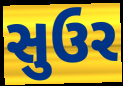
સુઉર